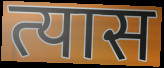
त्‍यास